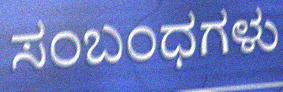
ಸಂಬಂಧಗಳು